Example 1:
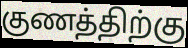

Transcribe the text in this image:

குணத்திற்கு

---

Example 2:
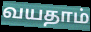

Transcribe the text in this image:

வயதாம்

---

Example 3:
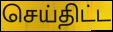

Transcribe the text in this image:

செய்திட்ட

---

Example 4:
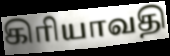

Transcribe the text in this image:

கிரியாவதி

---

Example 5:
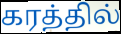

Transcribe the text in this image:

கரத்தில்